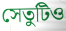
সেতুটিও